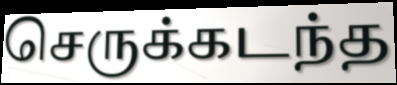
செருக்கடந்த